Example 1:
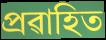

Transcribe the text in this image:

প্ৰৱাহিত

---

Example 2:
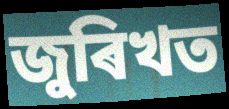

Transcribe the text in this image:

জুৰিখত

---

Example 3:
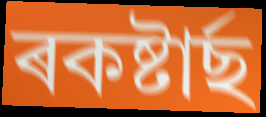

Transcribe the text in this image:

ৰকষ্টাৰ্ছ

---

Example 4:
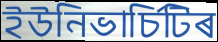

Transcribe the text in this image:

ইউনিভাৰ্চিটিৰ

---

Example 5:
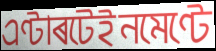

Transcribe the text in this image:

এণ্টাৰটেইনমেণ্টে